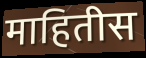
माहितीस